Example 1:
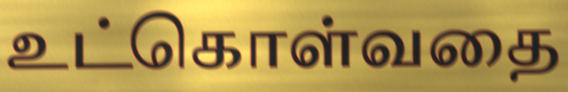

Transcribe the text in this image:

உட்கொள்வதை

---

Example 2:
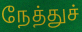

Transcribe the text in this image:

நேத்துச்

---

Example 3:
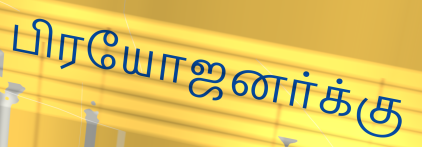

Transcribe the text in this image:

பிரயோஜனர்க்கு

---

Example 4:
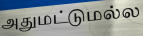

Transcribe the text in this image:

அதுமட்டுமல்ல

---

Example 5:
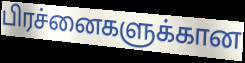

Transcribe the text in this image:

பிரச்னைகளுக்கான